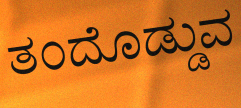
ತಂದೊಡ್ಡುವ